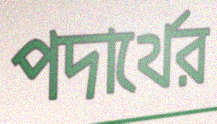
পদার্থের